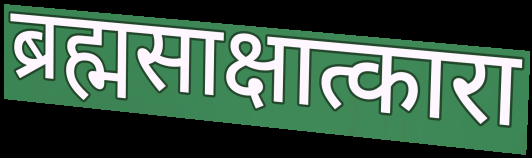
ब्रह्मसाक्षात्कारा